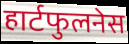
हार्टफुलनेस